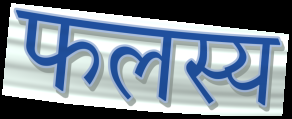
फलस्य